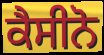
ਕੈਸੀਨੋ